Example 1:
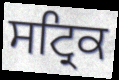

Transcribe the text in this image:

ਸਟ੍ਰਿਕ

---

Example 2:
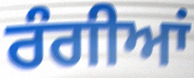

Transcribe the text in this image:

ਰੰਗੀਆਂ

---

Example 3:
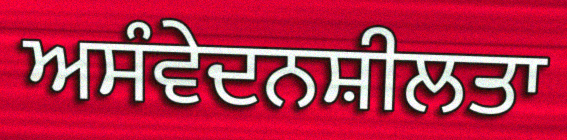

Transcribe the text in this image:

ਅਸੰਵੇਦਨਸ਼ੀਲਤਾ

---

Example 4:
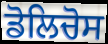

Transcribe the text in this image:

ਡੋਲਿਚੋਸ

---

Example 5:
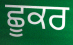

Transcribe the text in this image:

ਛੂਕਰ